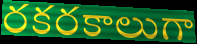
రకరకాలుగా